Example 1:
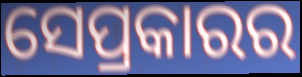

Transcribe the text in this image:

ସେପ୍ରକାରର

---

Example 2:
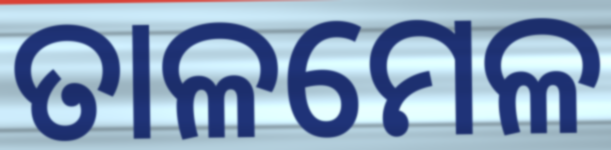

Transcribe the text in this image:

ତାଳମେଳ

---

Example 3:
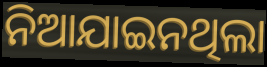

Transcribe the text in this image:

ନିଆଯାଇନଥିଲା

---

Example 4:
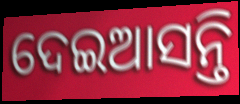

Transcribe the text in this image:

ଦେଇଆସନ୍ତି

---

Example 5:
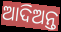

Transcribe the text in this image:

ଆଦିଅନ୍ତ